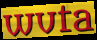
wuta